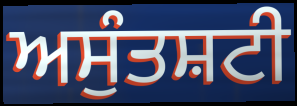
ਅਸੁੰਤਸ਼ਟੀ